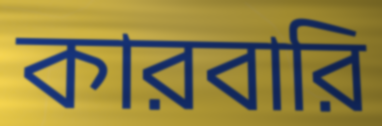
কারবারি